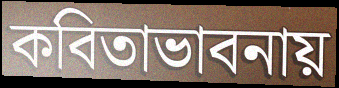
কবিতাভাবনায়